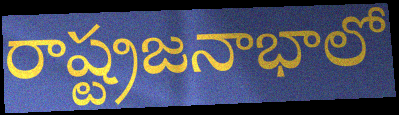
రాష్ట్రజనాభాలో